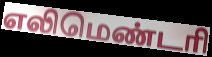
எலிமெண்டரி